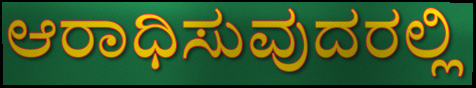
ಆರಾಧಿಸುವುದರಲ್ಲಿ